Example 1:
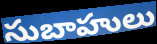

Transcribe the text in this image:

సుబాహులు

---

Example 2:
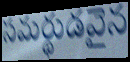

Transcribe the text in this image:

సమర్థుడవైన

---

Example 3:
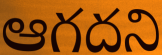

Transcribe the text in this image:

ఆగదని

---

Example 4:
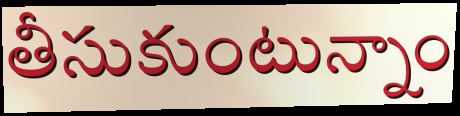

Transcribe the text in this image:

తీసుకుంటున్నాం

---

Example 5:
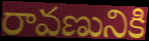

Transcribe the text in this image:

రావణునికి